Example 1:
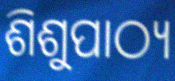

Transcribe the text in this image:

ଶିଶୁପାଠ୍ୟ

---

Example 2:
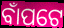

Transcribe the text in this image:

ବାଁପଟେ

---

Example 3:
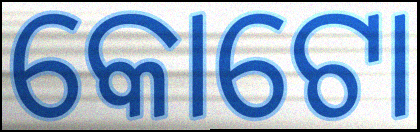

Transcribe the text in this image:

କୋଟୋ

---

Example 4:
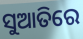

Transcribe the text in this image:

ସୁଆତିରେ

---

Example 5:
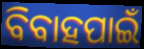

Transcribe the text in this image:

ବିବାହପାଇଁ